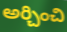
అర్చించి